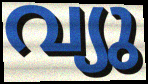
വ്യു